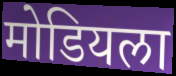
मोडियला